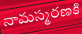
నామస్మరణకి